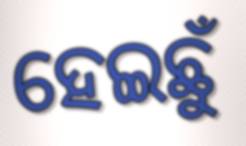
ହେଇଛୁଁ